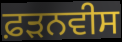
ਫ਼ੜਨਵੀਸ